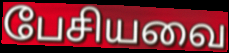
பேசியவை